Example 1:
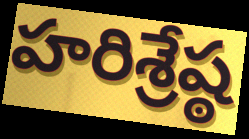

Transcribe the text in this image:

హరిశ్రేష్ఠ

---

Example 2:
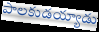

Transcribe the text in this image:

పాలకుడయ్యాడు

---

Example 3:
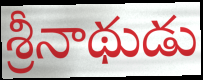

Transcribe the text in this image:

శ్రీనాథుడు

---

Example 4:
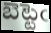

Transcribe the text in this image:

బెట్టెఁ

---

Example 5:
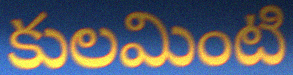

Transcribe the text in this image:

కులమింటి